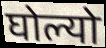
घोल्यो